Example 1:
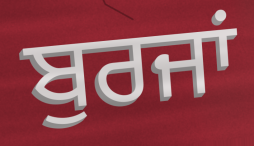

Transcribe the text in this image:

ਬੁਰਜਾਂ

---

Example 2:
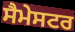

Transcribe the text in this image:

ਸੈਮੇਸਟਰ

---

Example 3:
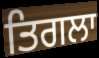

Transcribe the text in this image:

ਤਿਗਲਾ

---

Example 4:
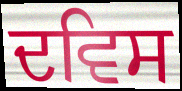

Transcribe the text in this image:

ਦਵਿਸ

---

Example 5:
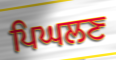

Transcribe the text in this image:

ਪਿਘਲਣ